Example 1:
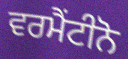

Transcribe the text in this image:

ਵਰਮੈਂਟੀਨੋ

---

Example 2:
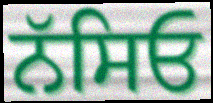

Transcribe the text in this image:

ਨੱਸਿਓ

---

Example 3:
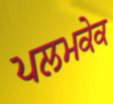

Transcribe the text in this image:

ਪਲਮਕੇਕ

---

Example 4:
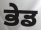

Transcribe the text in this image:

ਭੇਡ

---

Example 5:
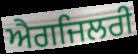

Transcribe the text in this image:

ਐਗਜਿਲਰੀ